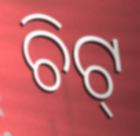
ଚିଟ୍